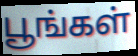
பூங்கள்